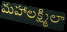
మహాలక్ష్మిలా